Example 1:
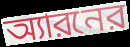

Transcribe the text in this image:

অ্যারনের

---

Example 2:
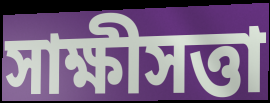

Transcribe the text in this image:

সাক্ষীসত্তা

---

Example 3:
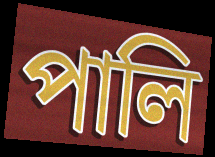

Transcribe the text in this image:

পালি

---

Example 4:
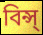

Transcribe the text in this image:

বিন্স্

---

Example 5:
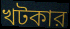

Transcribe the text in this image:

খটকার